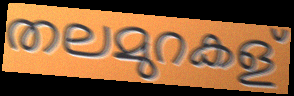
തലമുറകള്